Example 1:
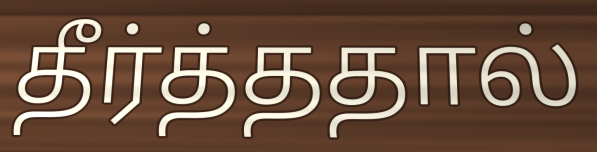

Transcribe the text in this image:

தீர்த்ததால்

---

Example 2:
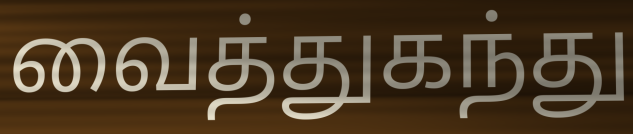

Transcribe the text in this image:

வைத்துகந்து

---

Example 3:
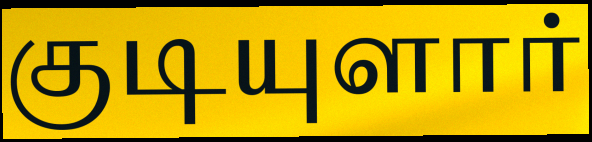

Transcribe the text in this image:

குடியுளார்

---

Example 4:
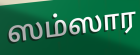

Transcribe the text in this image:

ஸம்ஸார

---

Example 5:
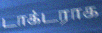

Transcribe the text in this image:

டாக்டராக